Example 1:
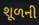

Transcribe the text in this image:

શૂળની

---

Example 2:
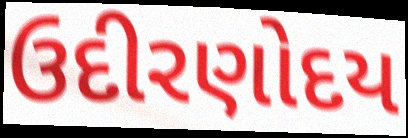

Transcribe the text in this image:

ઉદીરણોદય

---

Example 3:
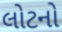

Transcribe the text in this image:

લોટનો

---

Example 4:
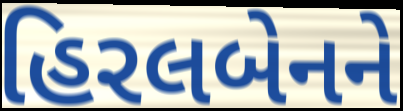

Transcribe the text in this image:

હિરલબેનને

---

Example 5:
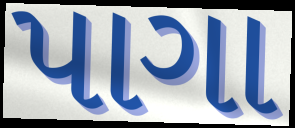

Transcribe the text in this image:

પાગા